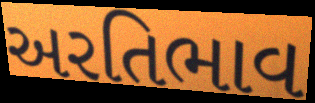
અરતિભાવ